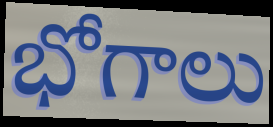
భోగాలు